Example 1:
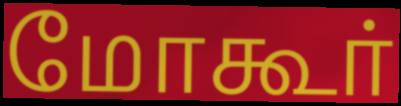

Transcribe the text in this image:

மோகூர்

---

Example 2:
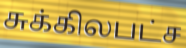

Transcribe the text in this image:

சுக்கிலபட்ச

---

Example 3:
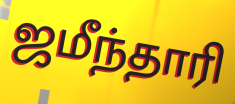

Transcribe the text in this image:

ஜமீந்தாரி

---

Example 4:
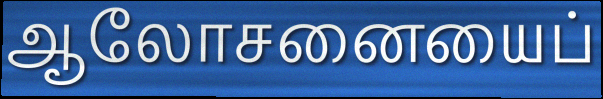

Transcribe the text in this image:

ஆலோசனையைப்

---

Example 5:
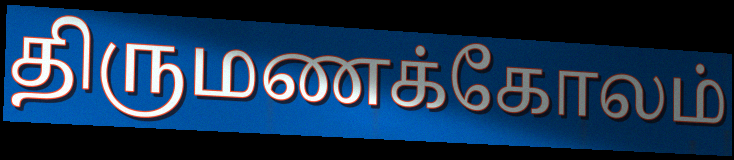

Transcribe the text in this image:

திருமணக்கோலம்